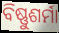
ବିଷ୍ଣୁଶର୍ମା